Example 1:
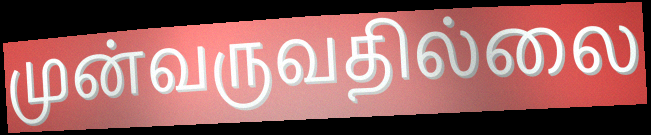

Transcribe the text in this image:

முன்வருவதில்லை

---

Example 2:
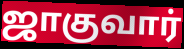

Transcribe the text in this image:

ஜாகுவார்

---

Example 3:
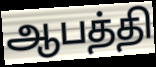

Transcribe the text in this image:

ஆபத்தி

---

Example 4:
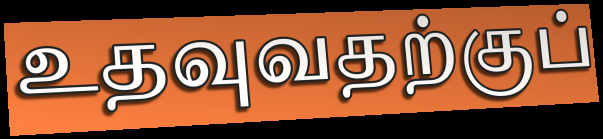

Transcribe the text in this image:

உதவுவதற்குப்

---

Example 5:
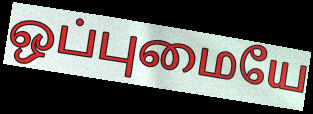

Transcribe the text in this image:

ஒப்புமையே